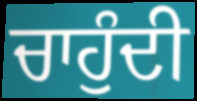
ਚਾਹੁੰਦੀ